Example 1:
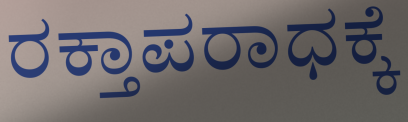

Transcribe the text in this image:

ರಕ್ತಾಪರಾಧಕ್ಕೆ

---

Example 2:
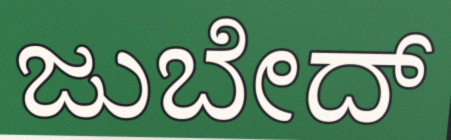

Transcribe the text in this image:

ಜುಬೇದ್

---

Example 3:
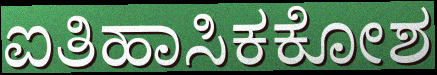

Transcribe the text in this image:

ಐತಿಹಾಸಿಕಕೋಶ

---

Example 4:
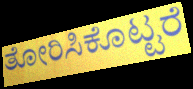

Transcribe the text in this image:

ತೋರಿಸಿಕೊಟ್ಟರೆ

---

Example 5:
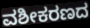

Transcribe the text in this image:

ವಶೀಕರಣದ